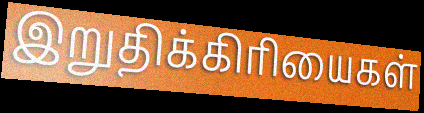
இறுதிக்கிரியைகள்